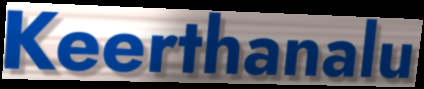
Keerthanalu